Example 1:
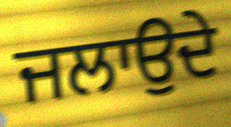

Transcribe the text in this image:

ਜਲਾਉਦੇ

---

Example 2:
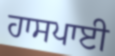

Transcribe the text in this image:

ਹਾਸਪਾਈ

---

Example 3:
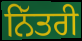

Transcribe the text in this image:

ਨਿੱਤਰੀ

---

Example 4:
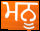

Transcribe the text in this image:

ਮਨੂ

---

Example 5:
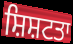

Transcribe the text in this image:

ਸ਼ਿਸ਼ਟਤਾ